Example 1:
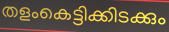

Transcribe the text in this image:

തളംകെട്ടിക്കിടക്കും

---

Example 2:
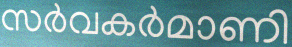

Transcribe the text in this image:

സർവകർമാണി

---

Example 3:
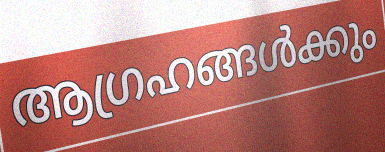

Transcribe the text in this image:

ആഗ്രഹങ്ങൾക്കും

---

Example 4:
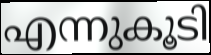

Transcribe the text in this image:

എന്നുകൂടി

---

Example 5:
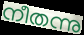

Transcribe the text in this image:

നീതന്നു